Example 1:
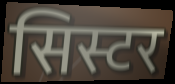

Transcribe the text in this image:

सिस्टर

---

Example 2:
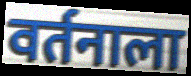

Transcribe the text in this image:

वर्तनाला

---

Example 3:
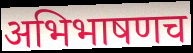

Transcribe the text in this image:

अभिभाषणच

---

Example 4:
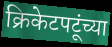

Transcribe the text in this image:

क्रिकेटपटूंच्या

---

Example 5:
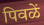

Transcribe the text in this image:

पिवळें